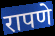
रापणे